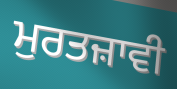
ਮੁਰਤਜ਼ਾਵੀ